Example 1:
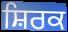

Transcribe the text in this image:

ਸ਼ਿਰਕ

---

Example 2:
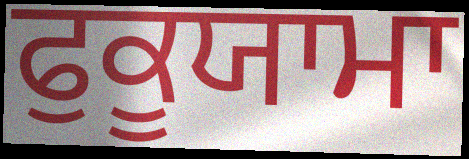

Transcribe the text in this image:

ਫੁਕੂਯਾਮਾ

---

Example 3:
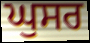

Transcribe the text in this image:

ਘੁਸਰ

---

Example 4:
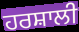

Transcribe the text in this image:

ਹਰਸ਼ਾਲੀ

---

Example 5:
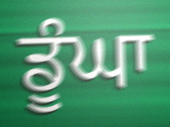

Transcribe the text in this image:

ਡੂੰਘਾ